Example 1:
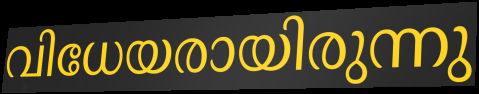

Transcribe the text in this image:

വിധേയരായിരുന്നു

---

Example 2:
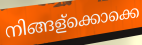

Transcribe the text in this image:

നിങ്ങള്ക്കൊക്കെ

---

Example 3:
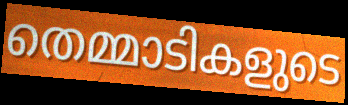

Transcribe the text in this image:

തെമ്മാടികളുടെ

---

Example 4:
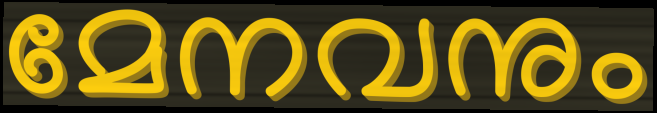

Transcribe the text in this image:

മേനവനും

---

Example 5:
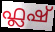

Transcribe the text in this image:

ഫ്ലഷ്